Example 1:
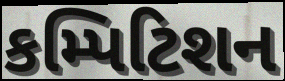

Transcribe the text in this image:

કમ્પિટિશન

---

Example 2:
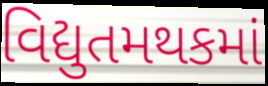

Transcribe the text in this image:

વિદ્યુતમથકમાં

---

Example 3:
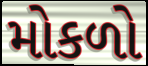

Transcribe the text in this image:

મોકળો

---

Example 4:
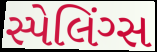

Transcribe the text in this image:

સ્પેલિંગ્સ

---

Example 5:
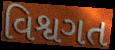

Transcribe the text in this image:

વિશ્વગત